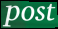
post